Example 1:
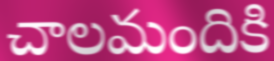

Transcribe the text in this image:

చాలమందికి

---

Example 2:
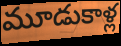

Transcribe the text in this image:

మూడుకాళ్ల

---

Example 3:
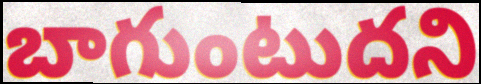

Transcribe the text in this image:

బాగుంటుదని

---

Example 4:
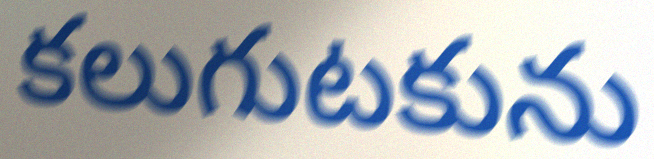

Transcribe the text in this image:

కలుగుటకును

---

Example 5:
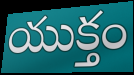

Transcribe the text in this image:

యుక్తం